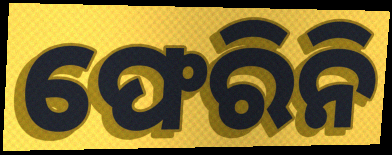
ଫେରିନି